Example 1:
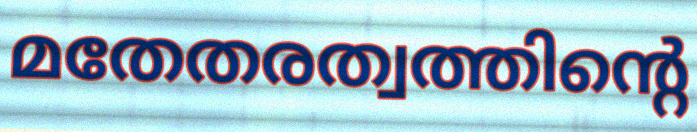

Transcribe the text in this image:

മതേതരത്വത്തിന്റെ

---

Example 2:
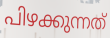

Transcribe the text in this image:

പിഴക്കുന്നത്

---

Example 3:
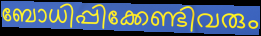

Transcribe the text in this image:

ബോധിപ്പിക്കേണ്ടിവരും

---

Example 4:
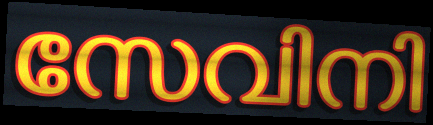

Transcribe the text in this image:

സേവിനി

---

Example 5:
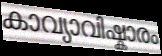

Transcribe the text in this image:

കാവ്യാവിഷ്കാരം